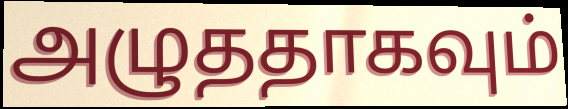
அழுததாகவும்